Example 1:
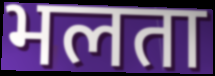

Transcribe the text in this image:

भलता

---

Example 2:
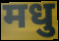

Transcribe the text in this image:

मधु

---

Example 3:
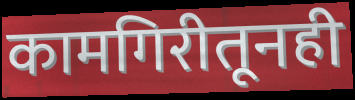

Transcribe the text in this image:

कामगिरीतूनही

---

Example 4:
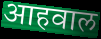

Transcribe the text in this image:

आहवाल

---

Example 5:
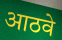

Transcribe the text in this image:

आठवे